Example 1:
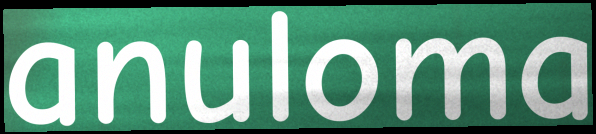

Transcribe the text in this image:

anuloma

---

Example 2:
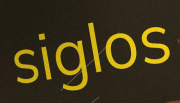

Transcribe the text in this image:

siglos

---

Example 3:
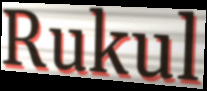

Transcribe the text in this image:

Rukul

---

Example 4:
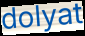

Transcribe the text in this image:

dolyat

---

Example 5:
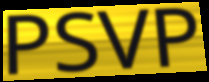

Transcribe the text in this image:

PSVP